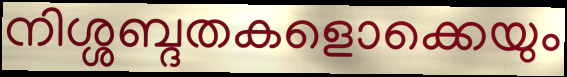
നിശ്ശബ്ദതകളൊക്കെയും